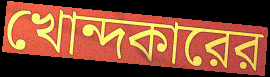
খোন্দকারের